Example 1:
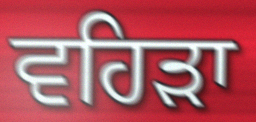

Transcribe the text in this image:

ਵਹਿੜਾ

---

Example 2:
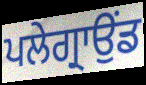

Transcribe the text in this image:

ਪਲੇਗ੍ਰਾਉਂਡ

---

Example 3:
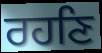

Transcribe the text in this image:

ਰਹਣਿ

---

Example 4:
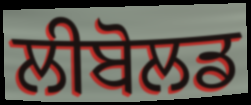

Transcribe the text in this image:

ਲੀਬੋਲਡ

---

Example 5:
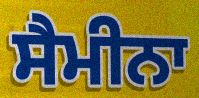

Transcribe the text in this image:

ਸੈਮੀਨਾ